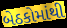
બેઠકોમાંથી